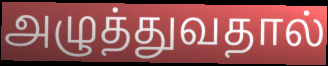
அழுத்துவதால்